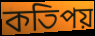
কতিপয়